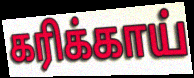
கரிக்காய்